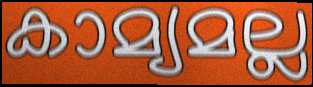
കാമ്യമല്ല